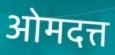
ओमदत्त